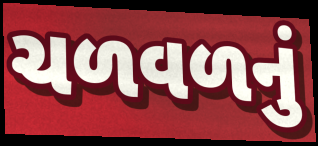
ચળવળનું